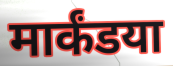
मार्कंडया